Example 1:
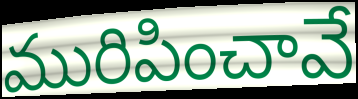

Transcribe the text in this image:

మురిపించావే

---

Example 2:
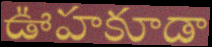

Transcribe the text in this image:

ఊహకూడా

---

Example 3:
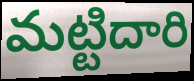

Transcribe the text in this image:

మట్టిదారి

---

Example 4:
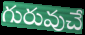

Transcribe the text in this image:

గురువుచే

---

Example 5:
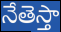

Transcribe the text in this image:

నేతెస్తా